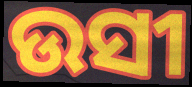
ଉସୀ